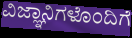
ವಿಜ್ಞಾನಿಗಳೊಂದಿಗೆ